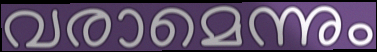
വരാമെന്നും